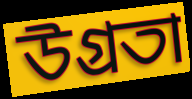
উগ্রতা